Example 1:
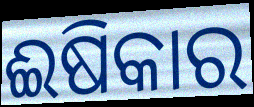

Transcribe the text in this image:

ଈଷିକାର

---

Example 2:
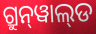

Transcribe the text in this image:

ଗ୍ରୁନ୍‌ୱାଲ୍‌ଡ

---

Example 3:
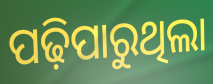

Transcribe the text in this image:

ପଢ଼ିପାରୁଥିଲା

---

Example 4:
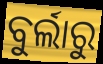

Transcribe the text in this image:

ବୁର୍ଲାରୁ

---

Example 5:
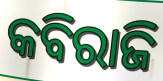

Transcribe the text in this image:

କବିରାଜି